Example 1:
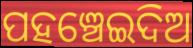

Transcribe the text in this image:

ପହଞ୍ଚେଇଦିଅ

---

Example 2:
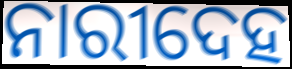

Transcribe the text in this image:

ନାରୀଦେହ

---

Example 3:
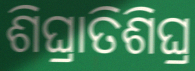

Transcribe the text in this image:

ଶିଘ୍ରାତିଶିଘ୍ର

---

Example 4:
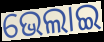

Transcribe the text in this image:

ଭେଲାଇ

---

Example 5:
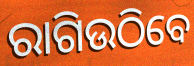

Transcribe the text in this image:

ରାଗିଉଠିବେ